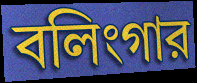
বলিংগার